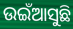
ଉଇଁଆସୁଛି